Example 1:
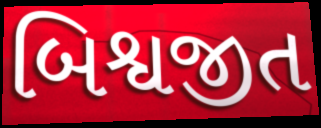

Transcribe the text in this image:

બિશ્વજીત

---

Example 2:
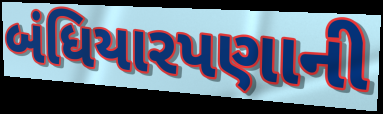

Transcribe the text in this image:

બંધિયારપણાની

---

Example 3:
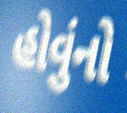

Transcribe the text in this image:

હોવુંનો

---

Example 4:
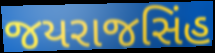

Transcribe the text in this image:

જયરાજસિંહ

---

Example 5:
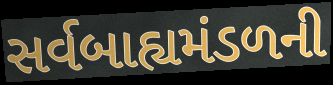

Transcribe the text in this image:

સર્વબાહ્યમંડળની